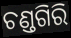
ଚଣ୍ଡଗିରି